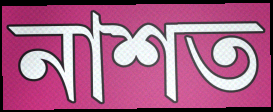
নাশত